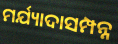
ମର୍ଯ୍ୟାଦାସମ୍ପନ୍ନ